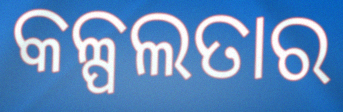
କଳ୍ପଲତାର